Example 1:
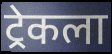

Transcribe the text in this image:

ट्रेकला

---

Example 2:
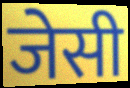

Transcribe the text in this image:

जेसी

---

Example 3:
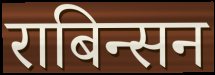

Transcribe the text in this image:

राबिन्सन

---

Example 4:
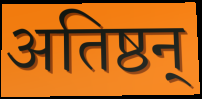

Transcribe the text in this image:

अतिष्ठन्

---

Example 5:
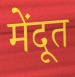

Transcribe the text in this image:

मेंदूत